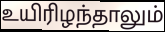
உயிரிழந்தாலும்